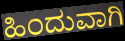
ಹಿಂದುವಾಗಿ